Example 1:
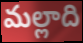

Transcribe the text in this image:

మల్లాది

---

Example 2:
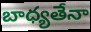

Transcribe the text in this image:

బాధ్యతేనా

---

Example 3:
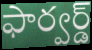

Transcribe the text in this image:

ఫార్వర్డ్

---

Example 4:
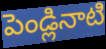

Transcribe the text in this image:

పెండ్లినాటి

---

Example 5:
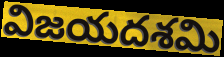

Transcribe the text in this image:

విజయదశమి